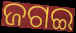
ଜଗଇ